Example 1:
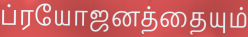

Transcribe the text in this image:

ப்ரயோஜனத்தையும்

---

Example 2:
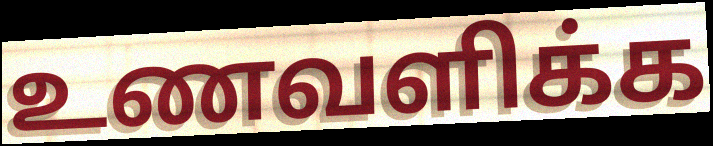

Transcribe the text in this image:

உணவளிக்க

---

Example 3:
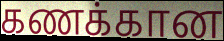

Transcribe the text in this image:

கணக்கான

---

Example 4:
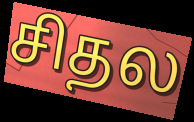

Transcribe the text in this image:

சிதல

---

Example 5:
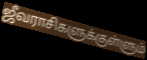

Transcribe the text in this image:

ஜீவராசிகளுக்குள்ளும்